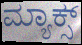
ಮ್ಯಾಕ್ಸ್